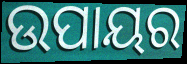
ଉପାୟର